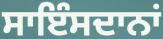
ਸਾਇੰਸਦਾਨਾਂ